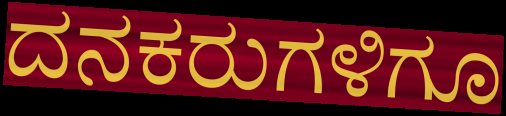
ದನಕರುಗಳಿಗೂ